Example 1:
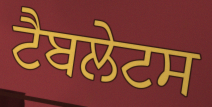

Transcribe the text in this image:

ਟੈਬਲੇਟਸ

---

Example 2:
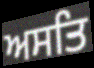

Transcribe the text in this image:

ਅਸਤਿ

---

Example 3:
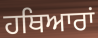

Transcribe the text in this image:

ਹਥਿਆਰਾਂ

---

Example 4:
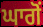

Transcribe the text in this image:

ਘਾਗੋਂ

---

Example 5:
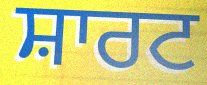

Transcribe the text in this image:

ਸ਼ਾਰਟ